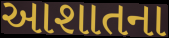
આશાતના